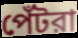
পেঁটরা